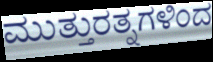
ಮುತ್ತುರತ್ನಗಳಿಂದ